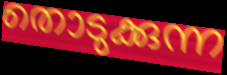
തൊടുക്കുന്ന